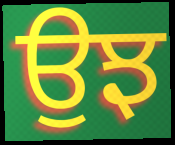
ਉਝ